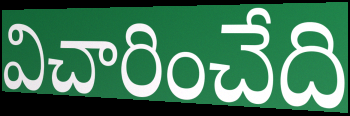
విచారించేది